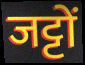
जट्टों